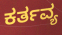
ಕರ್ತವ್ಯ